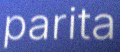
parita